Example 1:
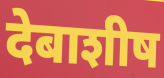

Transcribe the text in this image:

देबाशीष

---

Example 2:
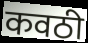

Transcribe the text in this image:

कवठी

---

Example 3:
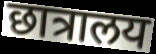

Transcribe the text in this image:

छात्रालय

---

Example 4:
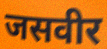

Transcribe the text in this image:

जसवीर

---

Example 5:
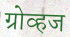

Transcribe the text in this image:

ग्रोव्हज